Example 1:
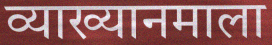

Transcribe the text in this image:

व्याख्यानमाला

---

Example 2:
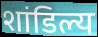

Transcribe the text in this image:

शांडिल्य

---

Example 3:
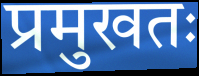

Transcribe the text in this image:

प्रमुखतः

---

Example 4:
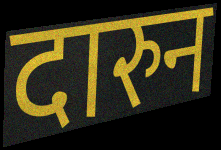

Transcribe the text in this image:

दारुन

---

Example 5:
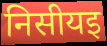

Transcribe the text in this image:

निसीयइ